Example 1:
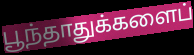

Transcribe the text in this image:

பூந்தாதுக்களைப்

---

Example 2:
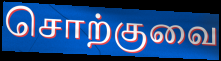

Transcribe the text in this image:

சொற்குவை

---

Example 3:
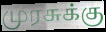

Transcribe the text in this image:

முரசுக்கு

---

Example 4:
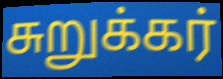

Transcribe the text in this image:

சுறுக்கர்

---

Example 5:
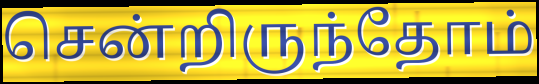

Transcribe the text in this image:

சென்றிருந்தோம்